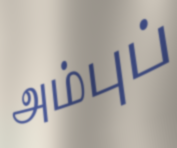
அம்புப்